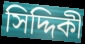
সিদ্দিকী